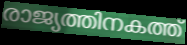
രാജ്യത്തിനകത്ത്